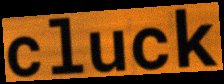
cluck